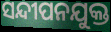
ସନ୍ଦୀପନଯୁକ୍ତ